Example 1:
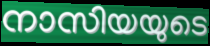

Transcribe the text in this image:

നാസിയയുടെ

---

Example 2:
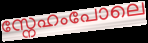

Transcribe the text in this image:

സ്നേഹംപോലെ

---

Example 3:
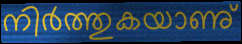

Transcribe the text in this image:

നിർത്തുകയാണു്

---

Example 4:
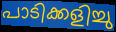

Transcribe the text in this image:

പാടിക്കളിച്ചു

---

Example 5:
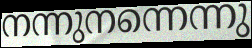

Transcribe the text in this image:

നന്നുനന്നെന്നു